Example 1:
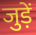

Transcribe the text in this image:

जुड़ें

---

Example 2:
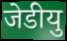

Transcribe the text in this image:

जेडीयु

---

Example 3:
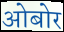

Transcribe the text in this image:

ओबोर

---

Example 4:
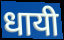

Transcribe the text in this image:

धायी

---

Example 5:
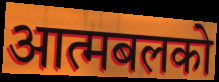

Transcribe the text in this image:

आत्मबलको